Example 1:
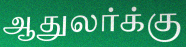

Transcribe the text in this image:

ஆதுலர்க்கு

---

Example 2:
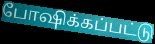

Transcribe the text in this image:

போஷிக்கப்பட்டு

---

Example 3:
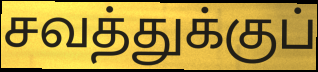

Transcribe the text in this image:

சவத்துக்குப்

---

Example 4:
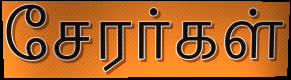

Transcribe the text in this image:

சேரர்கள்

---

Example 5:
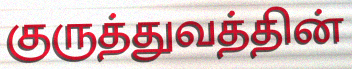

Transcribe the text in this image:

குருத்துவத்தின்